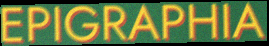
EPIGRAPHIA